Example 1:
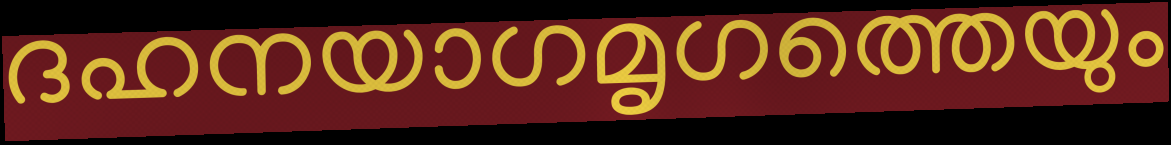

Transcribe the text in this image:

ദഹനയാഗമൃഗത്തെയും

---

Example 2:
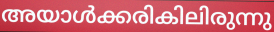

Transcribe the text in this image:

അയാൾക്കരികിലിരുന്നു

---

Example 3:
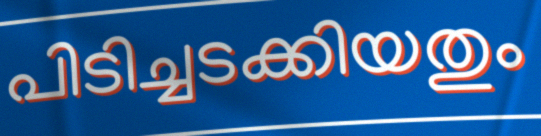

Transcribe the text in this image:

പിടിച്ചടക്കിയതും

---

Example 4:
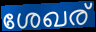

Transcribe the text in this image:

ശേഖര്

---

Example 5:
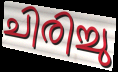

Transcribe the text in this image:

ചിരിച്ചു